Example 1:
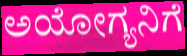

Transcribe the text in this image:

ಅಯೋಗ್ಯನಿಗೆ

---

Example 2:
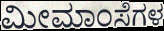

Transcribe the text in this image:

ಮೀಮಾಂಸೆಗಳ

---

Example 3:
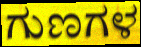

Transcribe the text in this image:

ಗುಣಗಳ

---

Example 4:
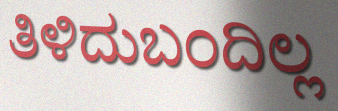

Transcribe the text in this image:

ತಿಳಿದುಬಂದಿಲ್ಲ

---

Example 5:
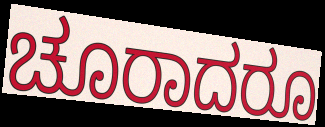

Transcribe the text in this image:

ಚೂರಾದರೂ